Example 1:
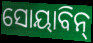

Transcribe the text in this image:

ସୋୟାବିନ୍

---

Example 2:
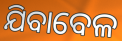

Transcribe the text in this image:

ଯିବାବେଳ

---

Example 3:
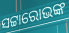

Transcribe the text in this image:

ସଟ୍ଟାରୋଭଙ୍କ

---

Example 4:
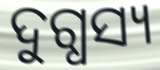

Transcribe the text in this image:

ଦୁଗ୍ଧସ୍ୟ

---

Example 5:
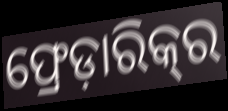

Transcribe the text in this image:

ଫ୍ରେଡ଼ାରିକ୍‍ର